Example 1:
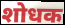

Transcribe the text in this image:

शोधक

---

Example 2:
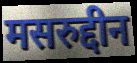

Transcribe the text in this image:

मसरुद्दीन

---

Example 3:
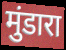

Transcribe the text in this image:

मुंडारा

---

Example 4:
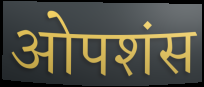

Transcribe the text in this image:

ओपशंस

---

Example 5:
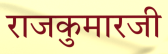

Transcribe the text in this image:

राजकुमारजी